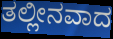
ತಲ್ಲೀನವಾದ